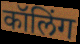
कॉलिंग